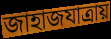
জাহাজযাত্রায়